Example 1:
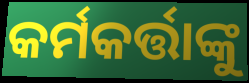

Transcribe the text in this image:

କର୍ମକର୍ତ୍ତାଙ୍କୁ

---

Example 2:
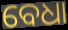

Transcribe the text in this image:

ବେଧା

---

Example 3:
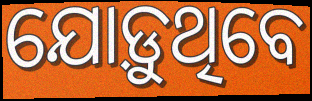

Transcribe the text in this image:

ଯୋଡ଼ୁଥିବେ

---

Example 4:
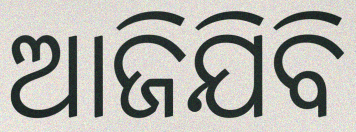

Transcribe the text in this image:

ଆଜିଯିବି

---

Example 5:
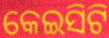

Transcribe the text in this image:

କେଇସିଟି